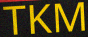
TKM